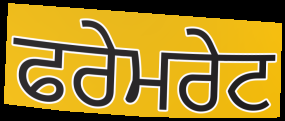
ਫਰੇਮਰੇਟ